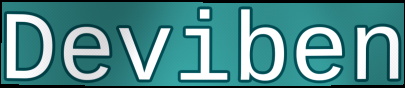
Deviben